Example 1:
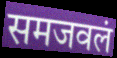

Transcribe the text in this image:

समजवलं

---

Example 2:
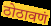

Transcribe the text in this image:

ठोठावणं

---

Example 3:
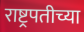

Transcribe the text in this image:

राष्ट्रपतीच्या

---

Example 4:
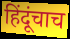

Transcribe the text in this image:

हिंदूंचाच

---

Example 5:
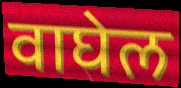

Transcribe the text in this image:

वाघेल